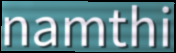
namthi